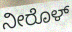
ನೀರೊಳ್